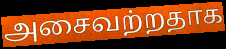
அசைவற்றதாக